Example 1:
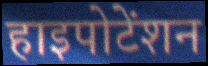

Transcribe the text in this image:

हाइपोटेंशन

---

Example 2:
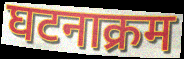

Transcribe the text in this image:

घटनाक्रम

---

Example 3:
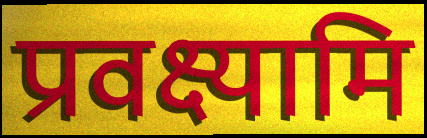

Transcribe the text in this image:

प्रवक्ष्यामि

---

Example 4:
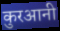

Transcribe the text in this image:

कुरआनी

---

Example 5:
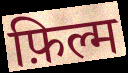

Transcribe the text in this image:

फ़िल्म